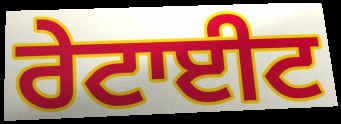
ਰੇਟਾਈਟ